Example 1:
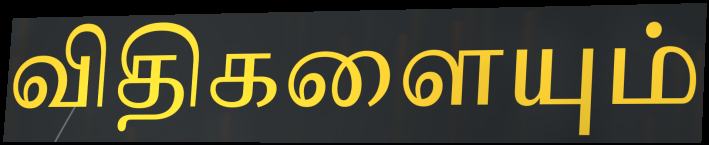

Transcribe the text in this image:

விதிகளையும்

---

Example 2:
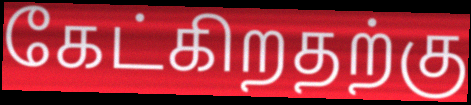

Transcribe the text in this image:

கேட்கிறதற்கு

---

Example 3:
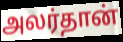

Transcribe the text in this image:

அலர்தான்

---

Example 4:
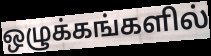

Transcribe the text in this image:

ஒழுக்கங்களில்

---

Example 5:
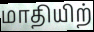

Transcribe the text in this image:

மாதியிற்